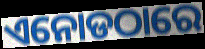
ଏନୋଡଠାରେ